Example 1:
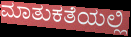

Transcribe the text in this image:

ಮಾತುಕತೆಯಲ್ಲಿ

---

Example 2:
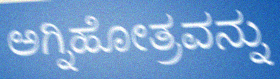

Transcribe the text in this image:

ಅಗ್ನಿಹೋತ್ರವನ್ನು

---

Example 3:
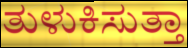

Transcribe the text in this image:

ತುಳುಕಿಸುತ್ತಾ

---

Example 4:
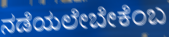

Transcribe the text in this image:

ನಡೆಯಲೇಬೇಕೆಂಬ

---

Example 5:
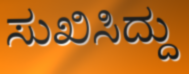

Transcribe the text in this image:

ಸುಖಿಸಿದ್ದು